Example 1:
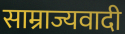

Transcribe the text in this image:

साम्राज्यवादी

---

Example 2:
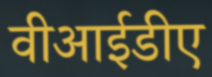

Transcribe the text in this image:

वीआईडीए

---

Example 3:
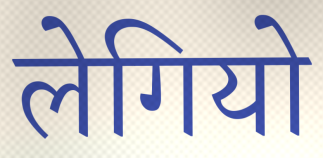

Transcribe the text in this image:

लेगियो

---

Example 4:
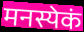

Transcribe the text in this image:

मनस्येकं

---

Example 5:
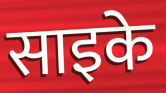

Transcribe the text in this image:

साइके